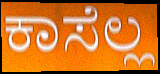
ಕಾಸೆಲ್ಲ